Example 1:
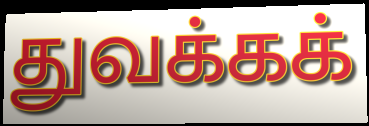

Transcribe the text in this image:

துவக்கக்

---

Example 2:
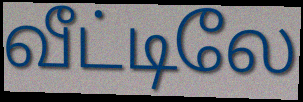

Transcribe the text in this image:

வீட்டிலே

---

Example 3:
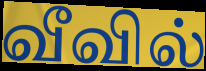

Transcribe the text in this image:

வீவில்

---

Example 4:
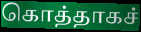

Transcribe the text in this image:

கொத்தாகச்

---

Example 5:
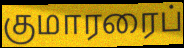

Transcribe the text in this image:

குமாரரைப்